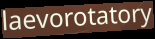
laevorotatory